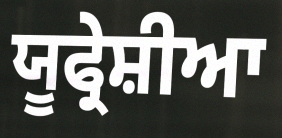
ਯੂਫ੍ਰੇਸ਼ੀਆ